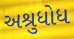
અશ્રુધોધ